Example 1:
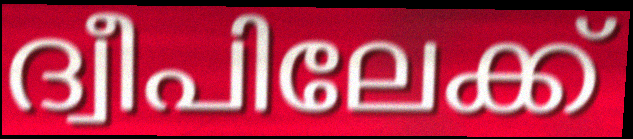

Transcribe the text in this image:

ദ്വീപിലേക്ക്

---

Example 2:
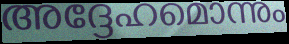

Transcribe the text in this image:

അദ്ദേഹമൊന്നും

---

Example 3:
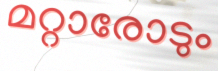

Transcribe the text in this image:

മറ്റാരോടും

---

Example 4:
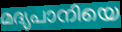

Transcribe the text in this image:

മദ്യപാനിയെ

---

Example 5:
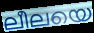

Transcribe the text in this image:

ലീലയെ